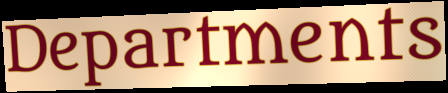
Departments